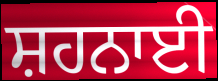
ਸ਼ਹਨਾਈ